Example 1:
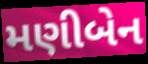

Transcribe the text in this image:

મણીબેન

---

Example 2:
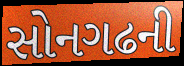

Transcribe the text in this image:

સોનગઢની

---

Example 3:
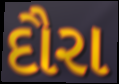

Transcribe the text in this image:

દૌરા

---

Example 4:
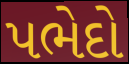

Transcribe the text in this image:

પભેદો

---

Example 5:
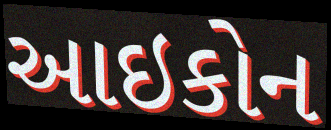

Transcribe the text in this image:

આઇકોન